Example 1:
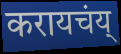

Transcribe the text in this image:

करायचंय्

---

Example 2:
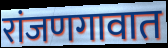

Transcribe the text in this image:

रांजणगावात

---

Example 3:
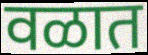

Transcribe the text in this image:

वळात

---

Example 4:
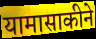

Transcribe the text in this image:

यामासाकीने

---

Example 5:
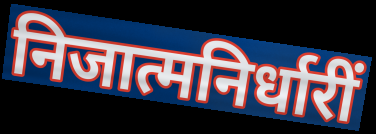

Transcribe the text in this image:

निजात्मनिर्धारीं